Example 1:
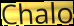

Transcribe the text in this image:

Chalo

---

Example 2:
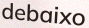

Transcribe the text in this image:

debaixo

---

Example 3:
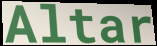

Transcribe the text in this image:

Altar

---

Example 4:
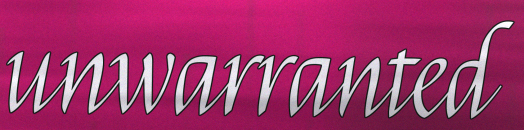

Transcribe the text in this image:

unwarranted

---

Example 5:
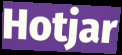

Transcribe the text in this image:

Hotjar